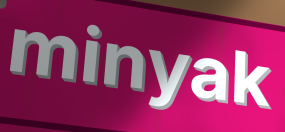
minyak